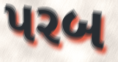
પરબ